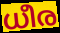
ധീര